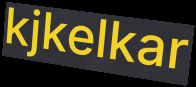
kjkelkar